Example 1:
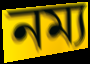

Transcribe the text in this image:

নম্য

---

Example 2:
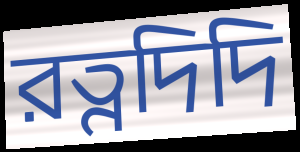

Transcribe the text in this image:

রত্নদিদি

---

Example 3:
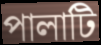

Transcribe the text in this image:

পালাটি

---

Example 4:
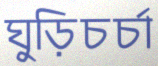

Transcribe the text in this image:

ঘুড়িচর্চা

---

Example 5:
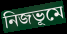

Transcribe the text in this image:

নিজভূমে